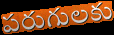
పరుగులకు